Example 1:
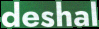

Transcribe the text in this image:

deshal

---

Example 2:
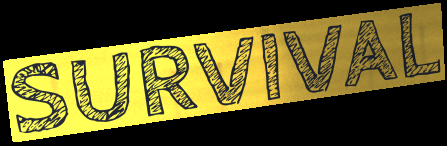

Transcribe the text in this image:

SURVIVAL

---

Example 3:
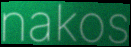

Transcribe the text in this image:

nakos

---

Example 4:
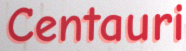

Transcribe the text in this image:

Centauri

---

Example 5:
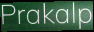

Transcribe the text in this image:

Prakalp